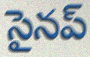
సైనప్